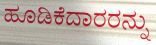
ಹೂಡಿಕೆದಾರರನ್ನು